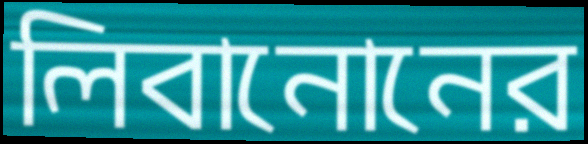
লিবানোনের